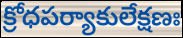
క్రోధపర్యాకులేక్షణః